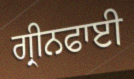
ਗ੍ਰੀਨਫਾਈ